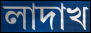
লাদাখ